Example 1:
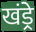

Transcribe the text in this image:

खंड्रे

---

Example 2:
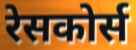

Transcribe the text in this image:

रेसकोर्स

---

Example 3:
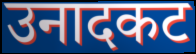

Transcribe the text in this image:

उनादकट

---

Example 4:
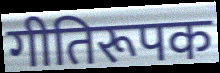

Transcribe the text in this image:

गीतिरूपक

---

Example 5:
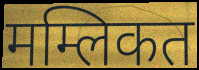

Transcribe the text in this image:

मम्लिकत